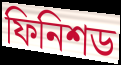
ফিনিশড